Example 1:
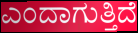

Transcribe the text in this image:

ಎಂದಾಗುತ್ತಿದೆ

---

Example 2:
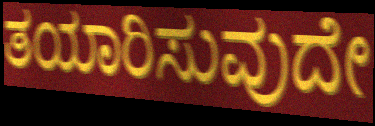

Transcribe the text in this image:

ತಯಾರಿಸುವುದೇ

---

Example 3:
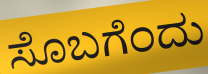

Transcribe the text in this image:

ಸೊಬಗೆಂದು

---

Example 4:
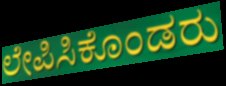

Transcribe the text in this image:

ಲೇಪಿಸಿಕೊಂಡರು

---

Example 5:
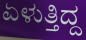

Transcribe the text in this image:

ಏಳುತ್ತಿದ್ದ